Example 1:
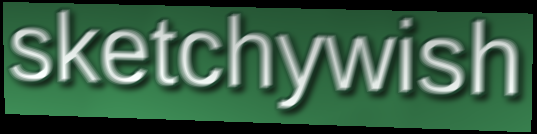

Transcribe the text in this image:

sketchywish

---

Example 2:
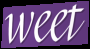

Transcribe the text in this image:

weet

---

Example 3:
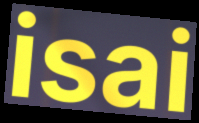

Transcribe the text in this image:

isai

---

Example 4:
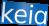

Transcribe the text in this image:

keia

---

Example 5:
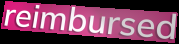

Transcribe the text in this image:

reimbursed